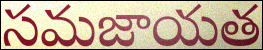
సమజాయత